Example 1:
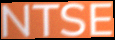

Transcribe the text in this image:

NTSE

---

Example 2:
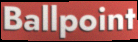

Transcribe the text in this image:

Ballpoint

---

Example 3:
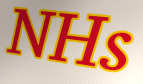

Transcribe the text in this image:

NHs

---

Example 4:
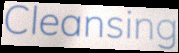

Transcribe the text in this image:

Cleansing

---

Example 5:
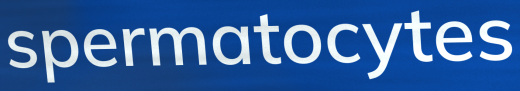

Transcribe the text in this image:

spermatocytes